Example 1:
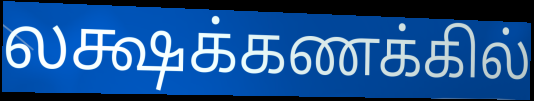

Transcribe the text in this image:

லக்ஷக்கணக்கில்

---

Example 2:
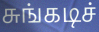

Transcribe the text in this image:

சுங்கடிச்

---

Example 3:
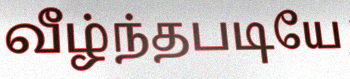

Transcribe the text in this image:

வீழ்ந்தபடியே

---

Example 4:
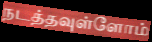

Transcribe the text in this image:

நடத்தவுள்ளோம்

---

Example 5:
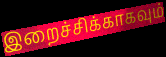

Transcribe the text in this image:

இறைச்சிக்காகவும்